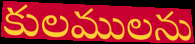
కులములను